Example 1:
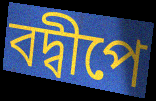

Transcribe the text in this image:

বদ্বীপে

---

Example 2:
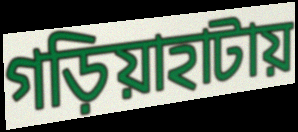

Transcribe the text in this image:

গড়িয়াহাটায়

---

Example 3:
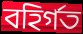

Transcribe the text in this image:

বহির্গত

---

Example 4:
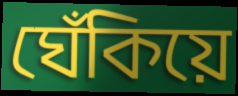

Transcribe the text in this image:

ঘেঁকিয়ে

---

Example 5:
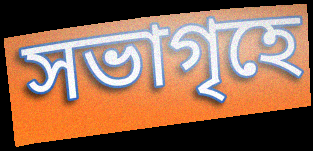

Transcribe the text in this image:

সভাগৃহে